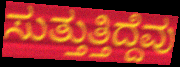
ಸುತ್ತುತ್ತಿದ್ದೆವು